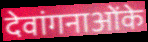
देवांगनाओंके